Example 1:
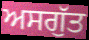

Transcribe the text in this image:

ਅਸਗੁੱਤ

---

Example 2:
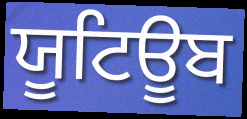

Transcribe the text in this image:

ਯੂਟਿਊਬ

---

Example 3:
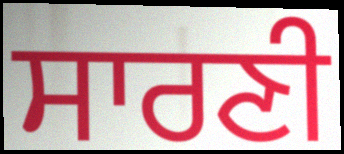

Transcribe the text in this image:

ਸਾਰਣੀ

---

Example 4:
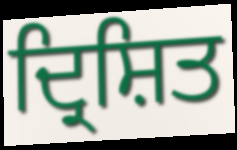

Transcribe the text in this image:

ਦ੍ਰਿਸ਼ਿਤ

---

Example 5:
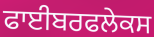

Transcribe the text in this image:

ਫਾਈਬਰਫਲੇਕਸ